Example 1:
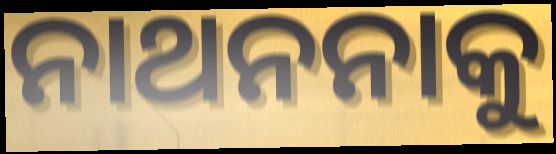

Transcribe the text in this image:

ନାଥନନାକୁ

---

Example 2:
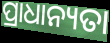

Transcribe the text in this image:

ପ୍ରାଧାନ୍ୟତା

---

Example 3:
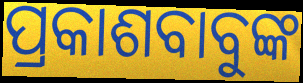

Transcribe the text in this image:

ପ୍ରକାଶବାବୁଙ୍କ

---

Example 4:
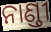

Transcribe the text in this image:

ନାଣ୍ଡୀ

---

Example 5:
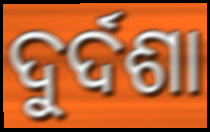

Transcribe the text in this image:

ଦୁର୍ଦଶା